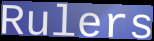
Rulers